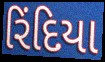
રિંદિયા